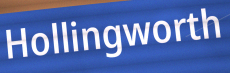
Hollingworth